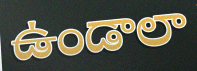
ఉండాలా